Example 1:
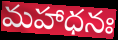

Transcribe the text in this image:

మహాధనః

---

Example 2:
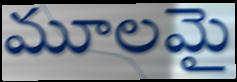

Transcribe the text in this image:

మూలమై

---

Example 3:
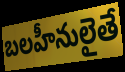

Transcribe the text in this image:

బలహీనులైతే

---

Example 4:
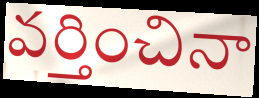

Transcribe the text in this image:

వర్తించినా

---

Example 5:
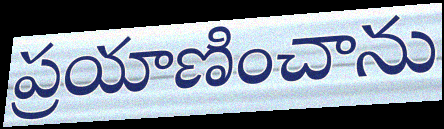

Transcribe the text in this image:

ప్రయాణించాను